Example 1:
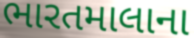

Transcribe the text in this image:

ભારતમાલાના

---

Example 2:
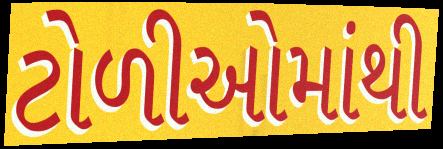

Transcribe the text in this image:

ટોળીઓમાંથી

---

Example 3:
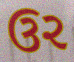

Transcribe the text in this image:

ઉર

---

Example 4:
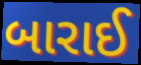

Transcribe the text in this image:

બારાઈ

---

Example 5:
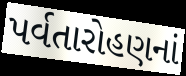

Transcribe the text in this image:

પર્વતારોહણનાં